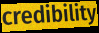
credibility